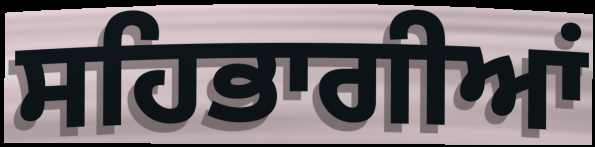
ਸਹਿਭਾਗੀਆਂ